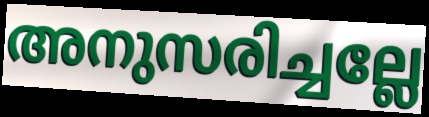
അനുസരിച്ചല്ലേ